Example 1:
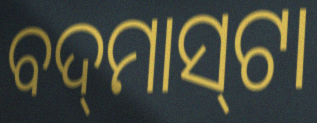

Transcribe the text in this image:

ବଦ୍‌ମାସ୍‌ଟା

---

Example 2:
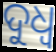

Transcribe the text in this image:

ଦୁଧ୍ଵ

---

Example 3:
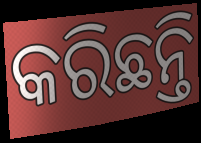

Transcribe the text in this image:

କରିଛନ୍ତି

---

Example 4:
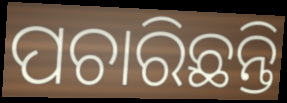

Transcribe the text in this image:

ପଚାରିଛନ୍ତି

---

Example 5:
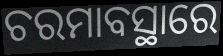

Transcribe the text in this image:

ଚରମାବସ୍ଥାରେ